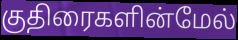
குதிரைகளின்மேல்